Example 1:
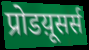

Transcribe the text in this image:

प्रोडय़ूसर्स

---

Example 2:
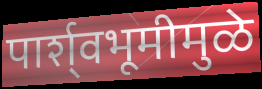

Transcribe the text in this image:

पार्श्वभूमीमुळे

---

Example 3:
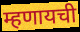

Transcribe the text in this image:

म्हणायची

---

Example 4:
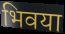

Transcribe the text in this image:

भिवया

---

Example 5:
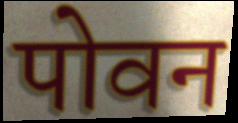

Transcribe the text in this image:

पोवन